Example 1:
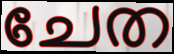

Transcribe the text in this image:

ചേത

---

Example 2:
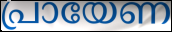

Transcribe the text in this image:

പ്രായേണ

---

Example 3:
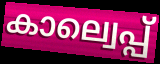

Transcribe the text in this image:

കാല്വെപ്പ്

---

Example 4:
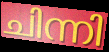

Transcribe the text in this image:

ചിന്നി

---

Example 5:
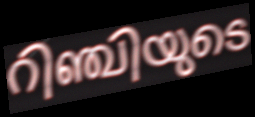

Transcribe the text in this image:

റിഞ്ചിയുടെ